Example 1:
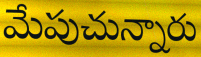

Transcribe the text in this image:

మేపుచున్నారు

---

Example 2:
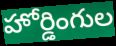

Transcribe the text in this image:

హోర్డింగుల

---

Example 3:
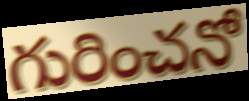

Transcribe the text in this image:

గురించనో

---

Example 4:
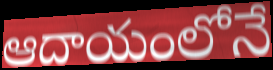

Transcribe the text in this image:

ఆదాయంలోనే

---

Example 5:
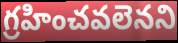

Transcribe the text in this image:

గ్రహించవలెనని